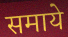
समाये